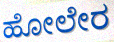
ಹೋಲೇರ